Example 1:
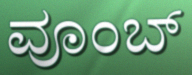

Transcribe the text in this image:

ವೂಂಬ್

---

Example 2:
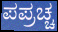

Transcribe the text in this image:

ಪಪ್ರಚ್ಚ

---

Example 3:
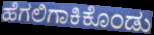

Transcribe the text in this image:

ಹೆಗಲಿಗಾಕಿಕೊಂಡು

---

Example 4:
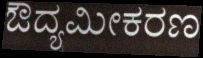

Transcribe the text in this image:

ಔದ್ಯಮೀಕರಣ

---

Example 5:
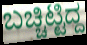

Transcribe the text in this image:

ಬಚ್ಚಿಟ್ಟಿದ್ದ